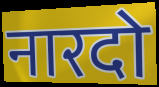
नारदो